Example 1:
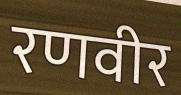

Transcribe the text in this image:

रणवीर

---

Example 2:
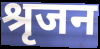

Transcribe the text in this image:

श्रृजन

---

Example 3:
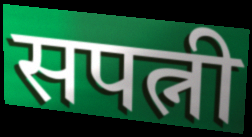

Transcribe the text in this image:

सपत्नी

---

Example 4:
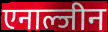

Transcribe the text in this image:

एनाल्जीन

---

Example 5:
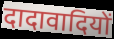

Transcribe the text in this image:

दादावादियों